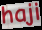
haji